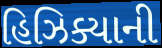
હિઝિક્યાની